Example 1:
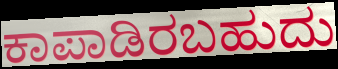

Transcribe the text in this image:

ಕಾಪಾಡಿರಬಹುದು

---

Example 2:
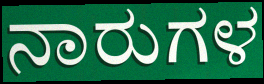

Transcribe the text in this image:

ನಾರುಗಳ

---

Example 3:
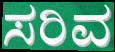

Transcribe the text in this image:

ಸರಿವ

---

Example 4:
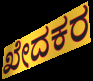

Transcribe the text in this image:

ಖೇದಕರ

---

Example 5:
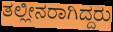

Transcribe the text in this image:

ತಲ್ಲೀನರಾಗಿದ್ದರು